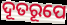
ଦୂତରୂପେ